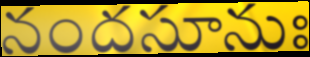
నందసూనుః